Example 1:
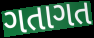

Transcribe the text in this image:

ગતાગત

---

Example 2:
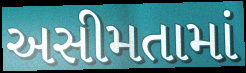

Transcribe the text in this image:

અસીમતામાં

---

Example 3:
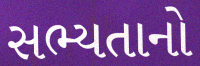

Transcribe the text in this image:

સભ્યતાનો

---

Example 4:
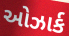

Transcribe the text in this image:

ઓઝાર્ક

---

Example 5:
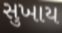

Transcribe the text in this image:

સુખાય